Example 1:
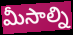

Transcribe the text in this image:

మీసాల్ని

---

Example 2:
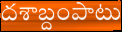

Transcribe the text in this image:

దశాబ్దంపాటు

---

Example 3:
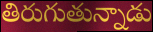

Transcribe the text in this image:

తిరుగుతున్నాడు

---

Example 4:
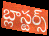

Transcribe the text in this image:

బ్లాస్టర్స్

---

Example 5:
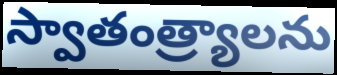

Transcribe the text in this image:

స్వాతంత్ర్యాలను